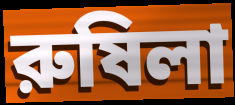
রুষিলা